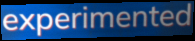
experimented